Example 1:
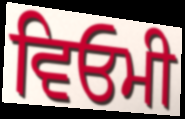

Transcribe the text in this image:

ਵਿਓਮੀ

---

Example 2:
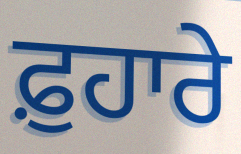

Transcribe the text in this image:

ਫ਼ੁਹਾਰੇ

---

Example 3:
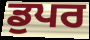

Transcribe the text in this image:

ਡੁਪਰ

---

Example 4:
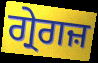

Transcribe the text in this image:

ਗ੍ਰੇਗਜ਼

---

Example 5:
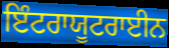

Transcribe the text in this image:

ਇੰਟਰਾਯੂਟਰਾਈਨ